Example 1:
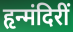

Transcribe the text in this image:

हृन्मंदिरीं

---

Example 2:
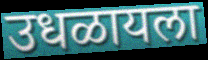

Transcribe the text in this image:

उधळायला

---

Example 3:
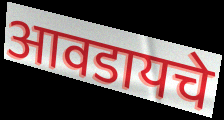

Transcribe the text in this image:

आवडायचे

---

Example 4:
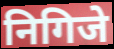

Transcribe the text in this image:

निगिजे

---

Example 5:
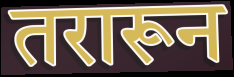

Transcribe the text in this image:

तरारून